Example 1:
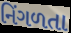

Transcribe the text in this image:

નિંગળતા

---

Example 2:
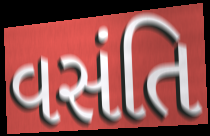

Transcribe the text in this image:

વસંતિ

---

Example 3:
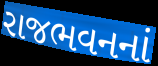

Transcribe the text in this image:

રાજભવનનાં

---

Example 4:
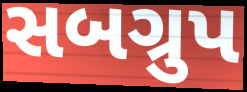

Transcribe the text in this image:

સબગ્રુપ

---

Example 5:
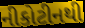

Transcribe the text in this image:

નીકોટીનથી